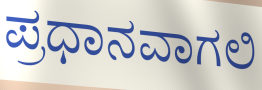
ಪ್ರಧಾನವಾಗಲಿ